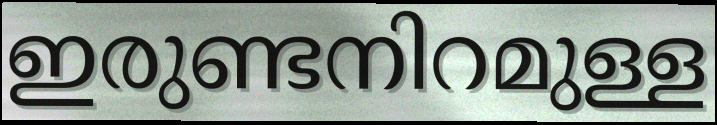
ഇരുണ്ടനിറമുള്ള